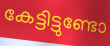
കേട്ടിട്ടുണ്ടോ